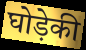
घोड़ेकी